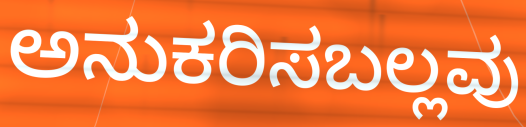
ಅನುಕರಿಸಬಲ್ಲವು